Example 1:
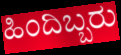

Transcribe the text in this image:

ಹಿಂದಿಬ್ಬರು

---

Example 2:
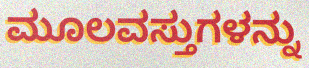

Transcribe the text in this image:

ಮೂಲವಸ್ತುಗಳನ್ನು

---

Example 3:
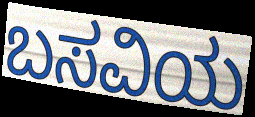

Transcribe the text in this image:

ಬಸವಿಯ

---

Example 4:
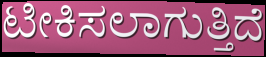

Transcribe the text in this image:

ಟೀಕಿಸಲಾಗುತ್ತಿದೆ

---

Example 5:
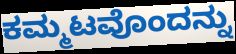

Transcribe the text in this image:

ಕಮ್ಮಟವೊಂದನ್ನು